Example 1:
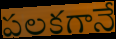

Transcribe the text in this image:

పలకగానే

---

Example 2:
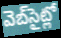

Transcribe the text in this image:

వెబ్‌సైట్లో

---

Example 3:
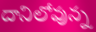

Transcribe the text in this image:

దానిలోవున్న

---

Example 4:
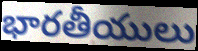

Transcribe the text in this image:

భారతీయులు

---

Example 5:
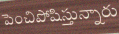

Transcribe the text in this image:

పెంచిపోషిస్తున్నారు